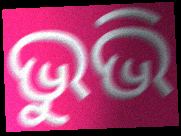
ଭୁଭି